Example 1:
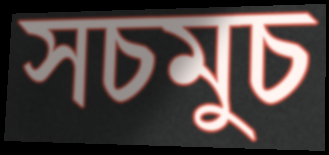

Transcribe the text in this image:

সচমুচ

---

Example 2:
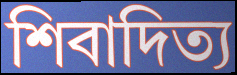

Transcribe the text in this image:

শিবাদিত্য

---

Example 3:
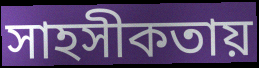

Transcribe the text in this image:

সাহসীকতায়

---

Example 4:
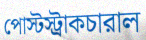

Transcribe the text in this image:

পোস্টস্ট্রাকচারাল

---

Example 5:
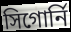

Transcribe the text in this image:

সিগোর্নি